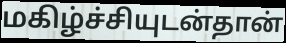
மகிழ்ச்சியுடன்தான்